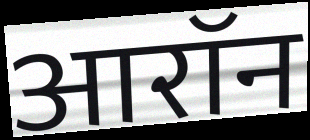
आरॉन